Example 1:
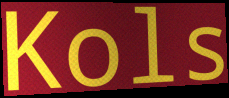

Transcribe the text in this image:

Kols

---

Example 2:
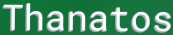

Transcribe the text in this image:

Thanatos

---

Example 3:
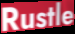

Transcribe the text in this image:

Rustle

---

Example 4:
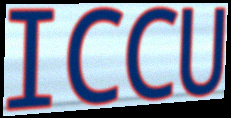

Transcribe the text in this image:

ICCU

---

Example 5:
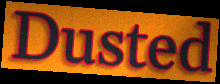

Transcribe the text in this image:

Dusted